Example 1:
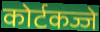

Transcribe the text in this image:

कोर्टकज्जे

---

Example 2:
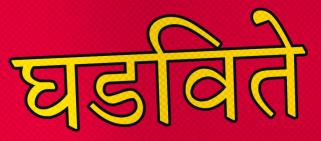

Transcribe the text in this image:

घडविते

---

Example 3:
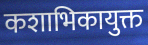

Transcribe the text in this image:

कशाभिकायुक्त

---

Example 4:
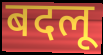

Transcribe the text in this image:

बदलू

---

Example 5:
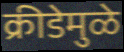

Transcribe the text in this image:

क्रीडेमुळे